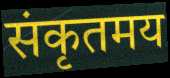
संकृतमय